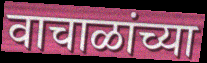
वाचाळांच्या